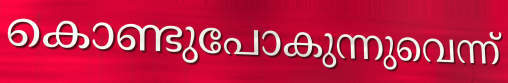
കൊണ്ടുപോകുന്നുവെന്ന്